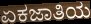
ಏಕಜಾತಿಯ